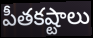
పీతకష్టాలు